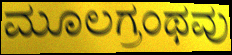
ಮೂಲಗ್ರಂಥವು